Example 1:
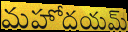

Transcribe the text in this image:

మహోదయమ్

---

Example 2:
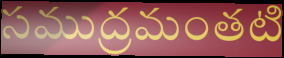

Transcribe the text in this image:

సముద్రమంతటి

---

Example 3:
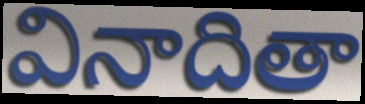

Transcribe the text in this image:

వినాదితా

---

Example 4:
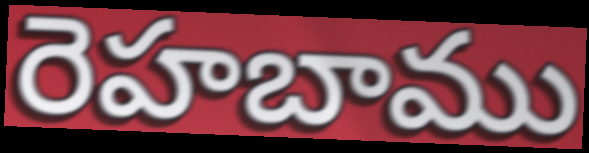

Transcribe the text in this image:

రెహబాము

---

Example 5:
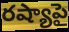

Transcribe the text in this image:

రష్యాపై